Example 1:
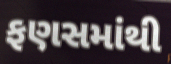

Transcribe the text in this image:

ફણસમાંથી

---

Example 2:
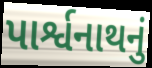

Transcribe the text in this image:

પાર્શ્વનાથનું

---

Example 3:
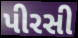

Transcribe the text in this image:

પીરસી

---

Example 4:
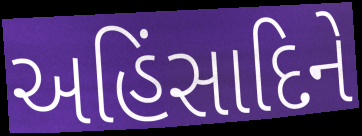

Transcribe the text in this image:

અહિંસાદિને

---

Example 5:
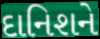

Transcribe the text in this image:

દાનિશને